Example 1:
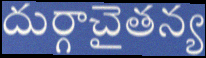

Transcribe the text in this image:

దుర్గాచైతన్య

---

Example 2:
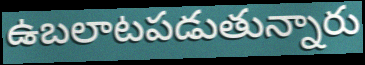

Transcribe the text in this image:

ఉబలాటపడుతున్నారు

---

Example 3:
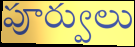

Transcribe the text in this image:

పూర్వులు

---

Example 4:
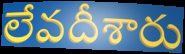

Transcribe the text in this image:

లేవదీశారు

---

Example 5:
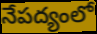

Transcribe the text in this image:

నేపద్యంలో